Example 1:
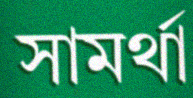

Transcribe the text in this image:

সামর্থা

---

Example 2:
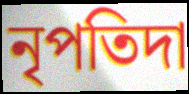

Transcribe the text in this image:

নৃপতিদা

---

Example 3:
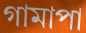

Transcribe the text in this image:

গামাপা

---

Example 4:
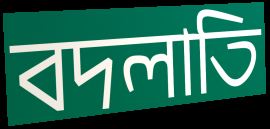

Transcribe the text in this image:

বদলাতি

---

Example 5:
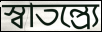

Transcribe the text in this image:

স্বাতন্ত্র্যে